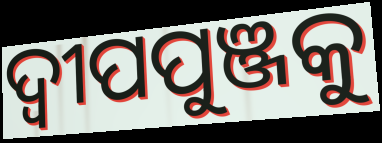
ଦ୍ଵୀପପୁଞ୍ଜକୁ